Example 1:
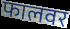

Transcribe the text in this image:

फालवर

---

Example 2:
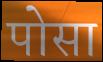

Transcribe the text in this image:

पोसा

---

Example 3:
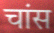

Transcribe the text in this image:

चांस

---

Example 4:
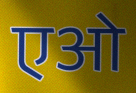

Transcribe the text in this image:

एओ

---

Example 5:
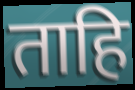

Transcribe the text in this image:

ताहि